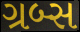
ગ્રબ્સ